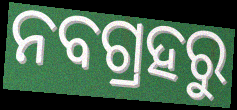
ନବଗ୍ରହରୁ